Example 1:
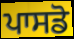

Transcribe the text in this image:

ਪਾਸਡੋ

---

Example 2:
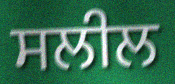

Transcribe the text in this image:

ਸਲੀਲ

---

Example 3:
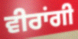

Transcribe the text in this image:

ਵੀਰਾਂਗੀ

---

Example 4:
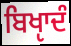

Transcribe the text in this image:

ਬਿਖੵਾਦੰ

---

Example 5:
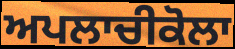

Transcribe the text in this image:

ਅਪਲਾਚੀਕੋਲਾ